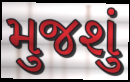
મુજશું